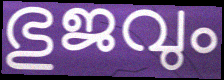
ഭുജവും